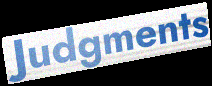
Judgments